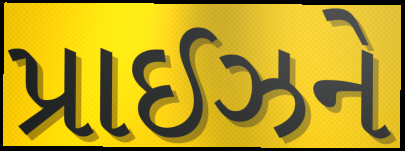
પ્રાઈઝને